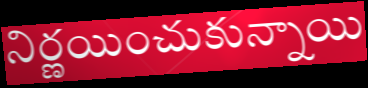
నిర్ణయించుకున్నాయి